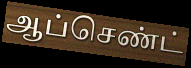
ஆப்செண்ட்